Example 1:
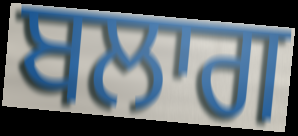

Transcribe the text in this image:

ਬਲਾਗ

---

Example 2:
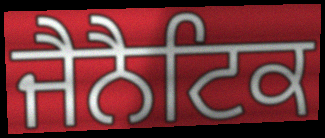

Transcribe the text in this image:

ਜੈਨੈਟਿਕ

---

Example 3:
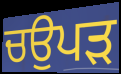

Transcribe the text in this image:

ਚਉਪੜ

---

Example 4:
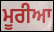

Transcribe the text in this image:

ਮੂਰੀਆ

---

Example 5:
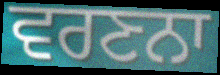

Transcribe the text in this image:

ਵਰਣਨਾ